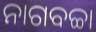
ନାଗବଚ୍ଚା